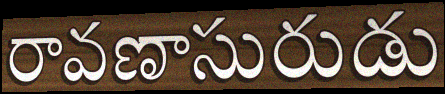
రావణాసురుడు